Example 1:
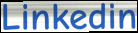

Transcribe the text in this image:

Linkedin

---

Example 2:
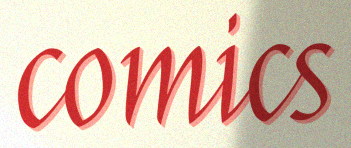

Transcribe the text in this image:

comics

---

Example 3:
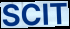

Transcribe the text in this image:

SCIT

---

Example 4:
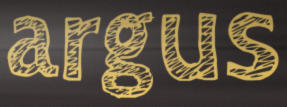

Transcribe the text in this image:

argus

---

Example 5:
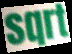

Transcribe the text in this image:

sqrt